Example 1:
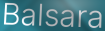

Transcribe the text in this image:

Balsara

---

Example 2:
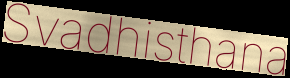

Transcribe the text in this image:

Svadhisthana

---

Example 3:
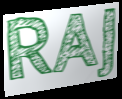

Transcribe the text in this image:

RAJ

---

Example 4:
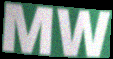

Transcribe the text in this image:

MW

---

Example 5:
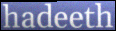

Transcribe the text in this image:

hadeeth